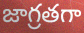
జాగ్రతగా